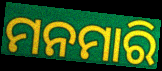
ମନମାରି